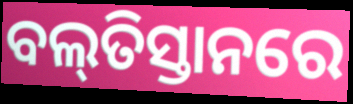
ବଲ୍‌ତିସ୍ତାନରେ